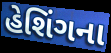
હેશિંગના